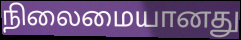
நிலைமையானது